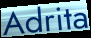
Adrita